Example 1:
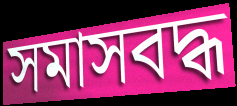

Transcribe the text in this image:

সমাসবদ্ধ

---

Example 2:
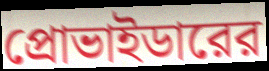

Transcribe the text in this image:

প্রোভাইডারের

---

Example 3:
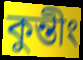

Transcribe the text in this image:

কুন্তীং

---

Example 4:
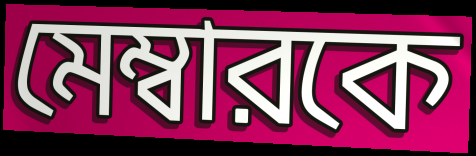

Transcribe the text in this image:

মেম্বারকে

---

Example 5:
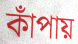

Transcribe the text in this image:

কাঁপায়